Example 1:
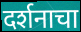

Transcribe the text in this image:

दर्शनाचा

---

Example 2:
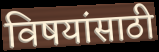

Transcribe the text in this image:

विषयांसाठी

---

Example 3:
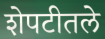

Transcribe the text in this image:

शेपटीतले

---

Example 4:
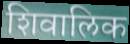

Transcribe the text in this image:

शिवालिक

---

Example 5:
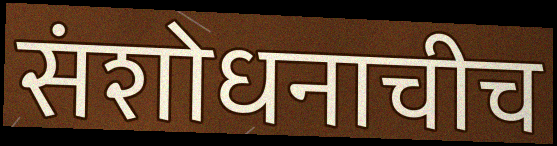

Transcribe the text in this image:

संशोधनाचीच